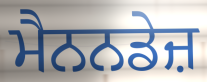
ਮੈਨਨਡੇਜ਼